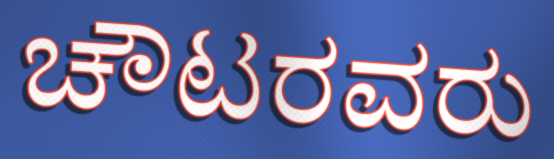
ಚೌಟರವರು